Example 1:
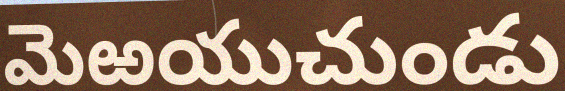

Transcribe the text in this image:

మెఱయుచుండు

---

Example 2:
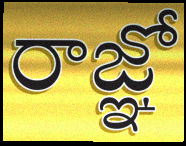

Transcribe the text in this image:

రాజ్ఞో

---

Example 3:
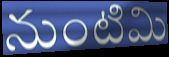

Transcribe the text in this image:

నుంటిమి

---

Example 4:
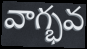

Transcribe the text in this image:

వాగ్భవ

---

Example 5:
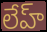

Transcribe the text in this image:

లేహ్